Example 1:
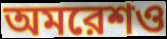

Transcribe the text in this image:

অমরেশও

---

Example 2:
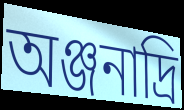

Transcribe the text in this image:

অঞ্জনাদ্রি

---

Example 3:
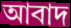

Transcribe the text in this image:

আবাদ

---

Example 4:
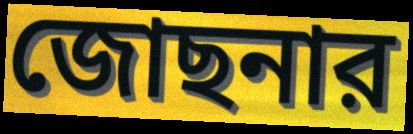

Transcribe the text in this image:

জোছনার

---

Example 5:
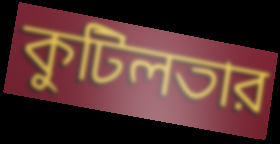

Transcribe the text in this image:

কুটিলতার